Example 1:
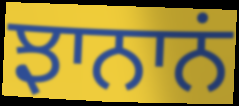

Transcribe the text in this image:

ਝਾਨਾਨਂ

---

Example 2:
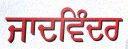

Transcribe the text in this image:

ਜਾਦਵਿੰਦਰ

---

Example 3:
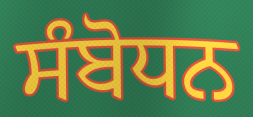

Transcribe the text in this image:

ਸੰਬੋਧਨ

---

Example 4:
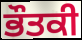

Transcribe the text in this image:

ਭੌਤਕੀ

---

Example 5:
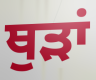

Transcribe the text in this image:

ਥੁੜਾਂ